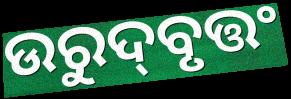
ଉରୁଦ୍‌ବୃତ୍ତଂ